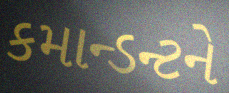
કમાન્ડન્ટને